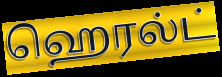
ஹெரல்ட்